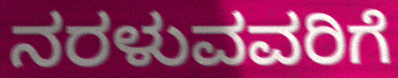
ನರಳುವವರಿಗೆ